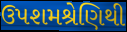
ઉપશમશ્રેણિથી